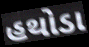
હથોડા